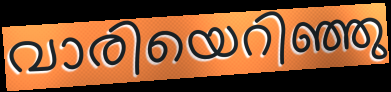
വാരിയെറിഞ്ഞു